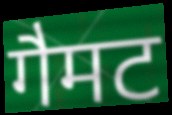
गैमट